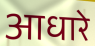
आधारे